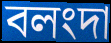
বলংদা